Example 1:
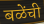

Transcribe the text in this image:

बळेंची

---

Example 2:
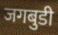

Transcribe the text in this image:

जगबुडी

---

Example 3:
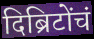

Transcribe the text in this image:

दिब्रिटोंचं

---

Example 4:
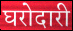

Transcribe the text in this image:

घरोदारी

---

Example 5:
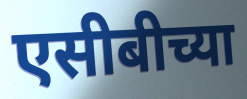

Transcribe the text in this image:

एसीबीच्या